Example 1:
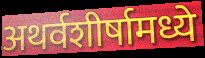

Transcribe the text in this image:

अथर्वशीर्षामध्ये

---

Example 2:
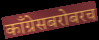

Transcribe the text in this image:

काँग्रेसबरोबरच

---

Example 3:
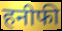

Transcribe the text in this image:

हनीफी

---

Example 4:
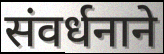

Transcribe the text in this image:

संवर्धनाने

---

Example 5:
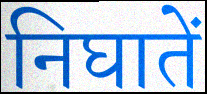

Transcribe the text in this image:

निघातें